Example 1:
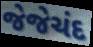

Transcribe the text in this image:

જેજેચંદ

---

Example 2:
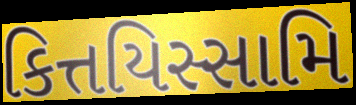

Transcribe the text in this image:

કિત્તયિસ્સામિ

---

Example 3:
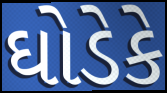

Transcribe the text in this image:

ઘોડેકે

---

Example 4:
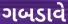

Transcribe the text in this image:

ગબડાવે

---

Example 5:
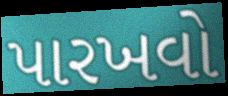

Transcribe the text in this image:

પારખવો